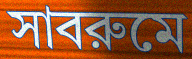
সাবরুমে